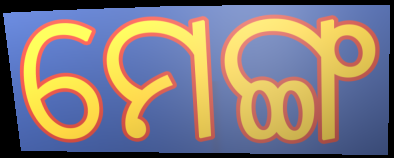
ମେଙ୍ଗ